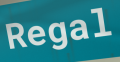
Regal